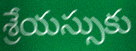
శ్రేయస్సుకు